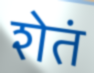
शेतं